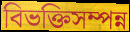
বিভক্তিসম্পন্ন